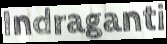
Indraganti